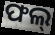
ଫଲ୍